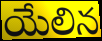
యేలిన